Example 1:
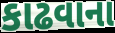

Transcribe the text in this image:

કાઢવાના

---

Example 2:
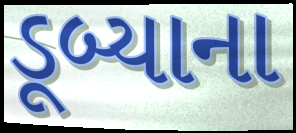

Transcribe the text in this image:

ડૂબ્યાના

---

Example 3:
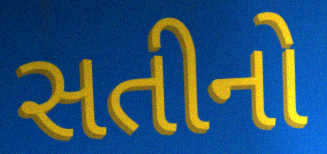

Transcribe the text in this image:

સતીનો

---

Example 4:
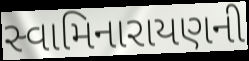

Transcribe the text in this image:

સ્વામિનારાયણની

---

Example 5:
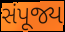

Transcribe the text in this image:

સંપૂજ્ય